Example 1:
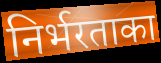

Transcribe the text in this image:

निर्भरताका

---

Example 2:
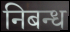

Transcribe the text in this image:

निबन्ध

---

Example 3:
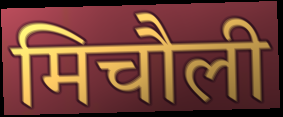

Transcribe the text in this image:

मिचौली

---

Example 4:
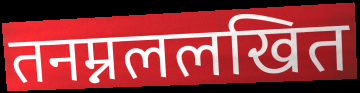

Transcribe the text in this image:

तनम्नललखित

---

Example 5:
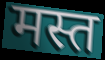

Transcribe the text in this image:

मस्त